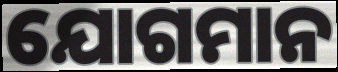
ଯୋଗମାନ